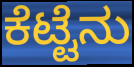
ಕೆಟ್ಟೆನು